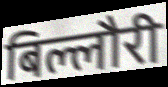
बिल्लौरी